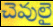
చెవులై